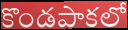
కొండపాకలో